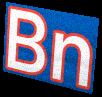
Bn